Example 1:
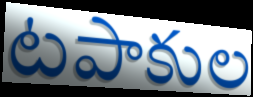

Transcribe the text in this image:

టపాకుల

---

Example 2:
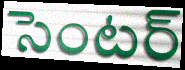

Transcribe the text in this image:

సెంటర్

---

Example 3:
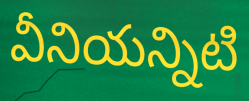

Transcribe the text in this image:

వీనియన్నిటి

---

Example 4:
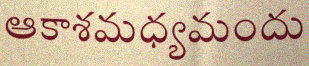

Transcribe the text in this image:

ఆకాశమధ్యమందు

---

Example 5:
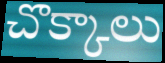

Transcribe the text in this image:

చొక్కాలు